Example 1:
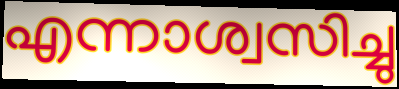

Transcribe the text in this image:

എന്നാശ്വസിച്ചു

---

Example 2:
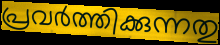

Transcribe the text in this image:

പ്രവർത്തിക്കുന്നതു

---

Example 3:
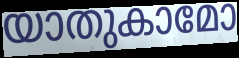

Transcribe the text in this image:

യാതുകാമോ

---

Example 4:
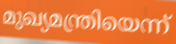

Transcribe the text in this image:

മുഖ്യമന്ത്രിയെന്ന്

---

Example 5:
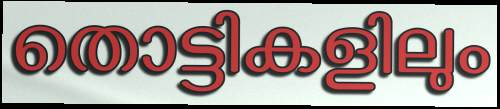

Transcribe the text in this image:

തൊട്ടികളിലും